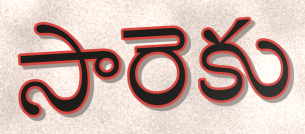
సారెకు